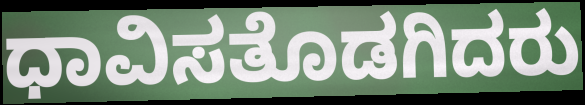
ಧಾವಿಸತೊಡಗಿದರು